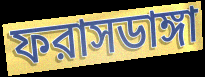
ফরাসডাঙ্গা